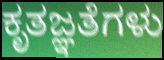
ಕೃತಜ್ಞತೆಗಳು